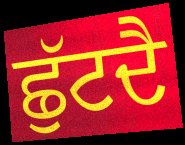
ਛੁੱਟਦੈ